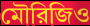
মৌরিজিও